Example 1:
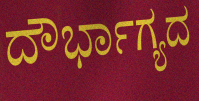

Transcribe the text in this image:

ದೌರ್ಭಾಗ್ಯದ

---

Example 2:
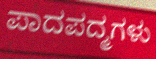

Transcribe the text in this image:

ಪಾದಪದ್ಮಗಳು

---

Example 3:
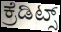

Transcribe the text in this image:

ಕ್ರೆಡಿಟ್ಸ್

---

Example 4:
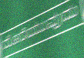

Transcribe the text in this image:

ದೊರೆಯುವುದು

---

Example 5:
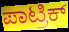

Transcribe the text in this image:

ಪಾಟ್ರಿಕ್